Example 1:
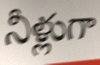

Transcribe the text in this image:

నీళ్లుగా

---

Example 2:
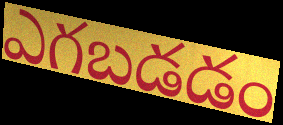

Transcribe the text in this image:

ఎగబడడం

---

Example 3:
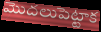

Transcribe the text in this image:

మొదలుపెట్టాక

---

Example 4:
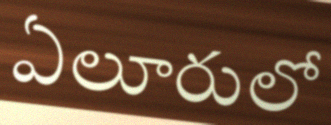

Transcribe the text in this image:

ఏలూరులో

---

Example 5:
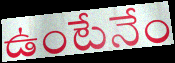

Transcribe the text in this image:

ఉంటేనేం